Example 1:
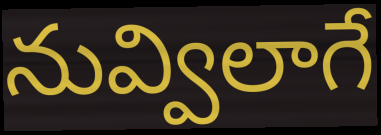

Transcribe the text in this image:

నువ్విలాగే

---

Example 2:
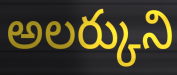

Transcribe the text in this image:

అలర్కుని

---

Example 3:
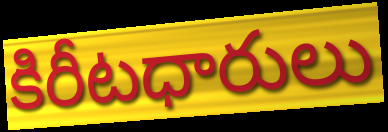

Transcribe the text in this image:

కిరీటధారులు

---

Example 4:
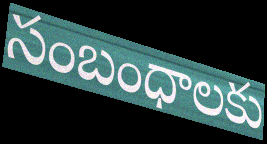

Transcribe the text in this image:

సంబంధాలకు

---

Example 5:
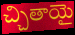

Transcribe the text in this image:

చ్చితాయై